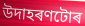
উদাহৰণটোৰ